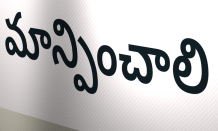
మాన్పించాలి